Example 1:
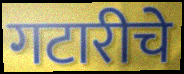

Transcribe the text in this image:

गटारीचे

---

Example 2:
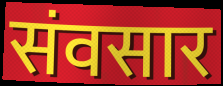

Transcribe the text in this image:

संवसार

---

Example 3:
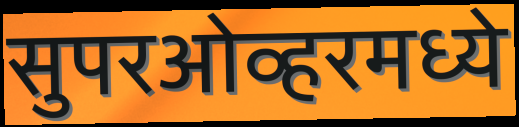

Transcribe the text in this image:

सुपरओव्हरमध्ये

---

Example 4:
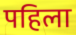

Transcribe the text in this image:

पहिला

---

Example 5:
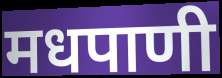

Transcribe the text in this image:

मधपाणी